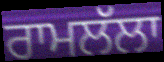
ਰਾਮਲੱਲਾ